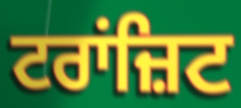
ਟਰਾਂਜ਼ਿਟ